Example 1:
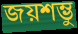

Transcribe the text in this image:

জয়শম্ভু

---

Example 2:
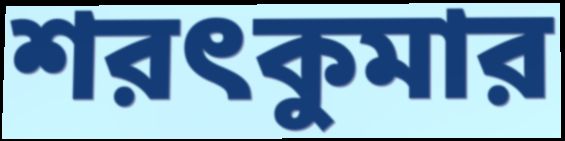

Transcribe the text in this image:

শরৎকুমার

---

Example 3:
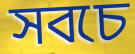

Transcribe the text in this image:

সবচে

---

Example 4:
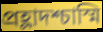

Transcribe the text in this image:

প্রহ্লাদশ্চাস্মি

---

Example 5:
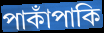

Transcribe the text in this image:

পাকাঁপাকি